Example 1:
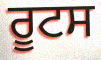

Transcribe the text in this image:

ਰੂਟਸ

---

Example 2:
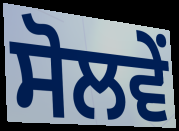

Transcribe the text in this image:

ਸੋਲਵੇਂ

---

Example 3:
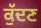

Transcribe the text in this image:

ਕੁੱਦਣ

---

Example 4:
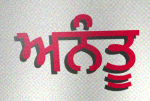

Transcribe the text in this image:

ਅਨੰਤੂ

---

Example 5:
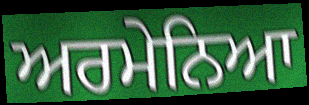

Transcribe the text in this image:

ਅਰਮੇਨਿਆ